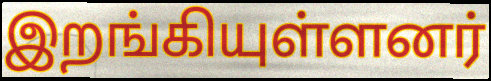
இறங்கியுள்ளனர்